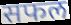
सफल